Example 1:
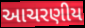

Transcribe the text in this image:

આચરણીય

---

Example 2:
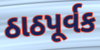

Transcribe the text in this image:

ઠાઠપૂર્વક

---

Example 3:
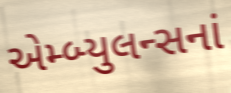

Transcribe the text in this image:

એમ્બ્યુલન્સનાં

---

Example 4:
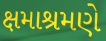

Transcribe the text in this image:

ક્ષમાશ્રમણે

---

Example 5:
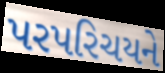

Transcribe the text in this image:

પરપરિચયને